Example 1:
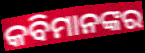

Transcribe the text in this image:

କବିମାନଙ୍କର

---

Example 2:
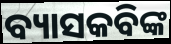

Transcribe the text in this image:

ବ୍ୟାସକବିଙ୍କ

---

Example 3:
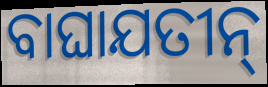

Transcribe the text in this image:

ବାଘାଯତୀନ୍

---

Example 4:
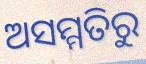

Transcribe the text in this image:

ଅସମ୍ମତିରୁ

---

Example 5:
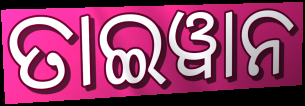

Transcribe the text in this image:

ତାଇୱାନ